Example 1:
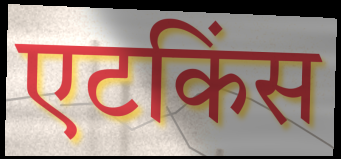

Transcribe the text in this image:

एटकिंस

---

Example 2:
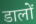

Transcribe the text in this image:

डालों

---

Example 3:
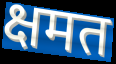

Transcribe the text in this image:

क्षमत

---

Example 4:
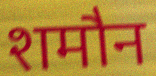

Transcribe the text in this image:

शमौन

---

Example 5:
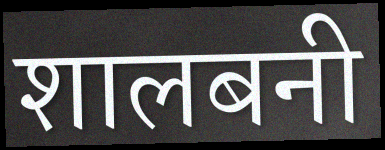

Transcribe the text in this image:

शालबनी